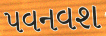
પવનવશ